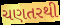
ચણતરથી